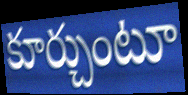
కూర్చుంటూ